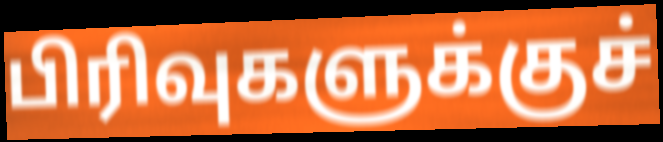
பிரிவுகளுக்குச்